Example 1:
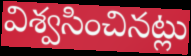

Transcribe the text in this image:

విశ్వసించినట్లు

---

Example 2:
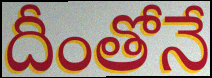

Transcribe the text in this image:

దీంతోనే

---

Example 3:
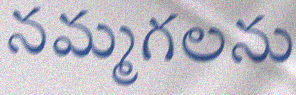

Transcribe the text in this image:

నమ్మగలను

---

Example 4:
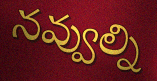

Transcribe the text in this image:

నవ్వుల్ని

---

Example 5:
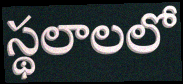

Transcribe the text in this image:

స్థలాలలో